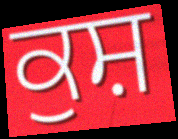
ਕੁਸ਼